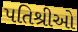
પતિશ્રીઓ